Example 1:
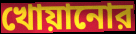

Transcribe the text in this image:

খোয়ানোর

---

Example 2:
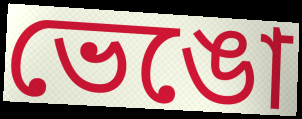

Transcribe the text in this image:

ভেঙো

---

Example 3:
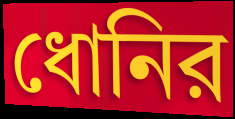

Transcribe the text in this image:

ধোনির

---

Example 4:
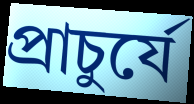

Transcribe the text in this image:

প্রাচুর্যে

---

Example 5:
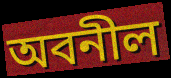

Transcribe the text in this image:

অবনীল